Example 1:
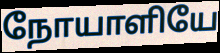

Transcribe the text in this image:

நோயாளியே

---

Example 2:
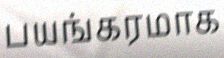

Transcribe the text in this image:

பயங்கரமாக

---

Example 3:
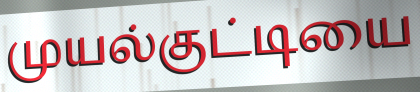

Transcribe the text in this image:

முயல்குட்டியை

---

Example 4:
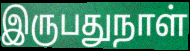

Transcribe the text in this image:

இருபதுநாள்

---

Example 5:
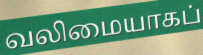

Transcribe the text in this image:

வலிமையாகப்